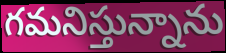
గమనిస్తున్నాను